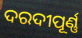
ଦରଦୀପୂର୍ଣ୍ଣ